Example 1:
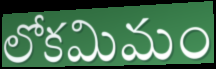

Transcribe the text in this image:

లోకమిమం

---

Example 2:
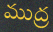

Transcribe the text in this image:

ముద్ర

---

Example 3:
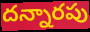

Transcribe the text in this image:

దన్నారపు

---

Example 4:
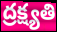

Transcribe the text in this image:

ద్రక్ష్యతి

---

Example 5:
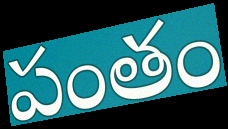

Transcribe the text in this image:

పంతం